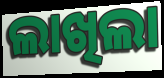
ଲାଖିଲା